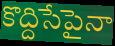
కొద్దిసేపైనా